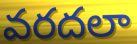
వరదలా